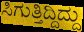
ಸಿಗುತ್ತಿದ್ದಿದ್ದು